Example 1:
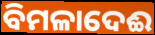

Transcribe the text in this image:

ବିମଳାଦେଈ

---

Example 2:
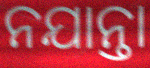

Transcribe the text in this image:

ନଯାନ୍ତା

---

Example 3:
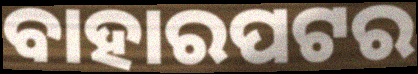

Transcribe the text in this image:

ବାହାରପଟର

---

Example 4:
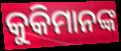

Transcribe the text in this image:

କୁକିମାନଙ୍କ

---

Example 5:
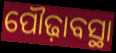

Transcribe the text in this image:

ପୌଢ଼ାବସ୍ଥା